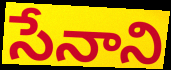
సేనాని